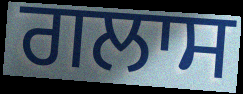
ਗਲਾਸ